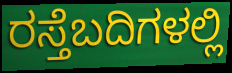
ರಸ್ತೆಬದಿಗಳಲ್ಲಿ